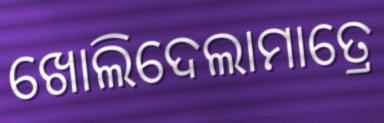
ଖୋଲିଦେଲାମାତ୍ରେ